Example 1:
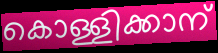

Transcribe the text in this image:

കൊള്ളിക്കാന്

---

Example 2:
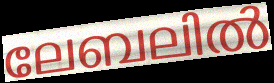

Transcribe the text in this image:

ലേബലിൽ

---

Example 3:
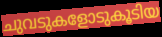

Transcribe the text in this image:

ചുവടുകളോടുകൂടിയ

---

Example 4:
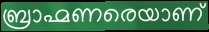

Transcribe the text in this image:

ബ്രാഹ്മണരെയാണ്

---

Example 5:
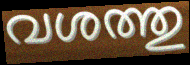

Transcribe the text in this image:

വശത്തു